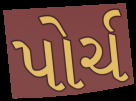
પોર્ચ